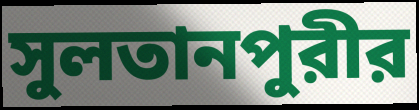
সুলতানপুরীর